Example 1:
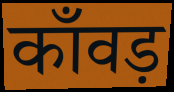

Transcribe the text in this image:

काँवड़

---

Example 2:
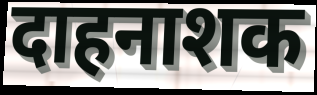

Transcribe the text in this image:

दाहनाशक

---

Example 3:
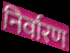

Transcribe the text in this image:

निर्वारण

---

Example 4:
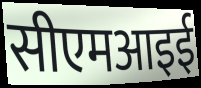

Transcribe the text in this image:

सीएमआइई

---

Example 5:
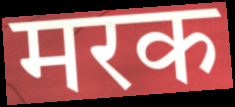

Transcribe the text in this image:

मरक